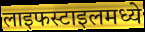
लाइफस्टाइलमध्ये